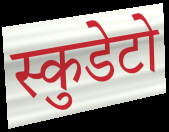
स्कुडेटो